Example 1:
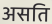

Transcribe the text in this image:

असति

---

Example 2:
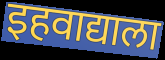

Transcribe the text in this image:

इहवाद्याला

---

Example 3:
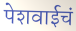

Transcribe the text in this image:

पेशवाईचं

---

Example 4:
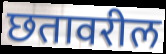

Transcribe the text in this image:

छतावरील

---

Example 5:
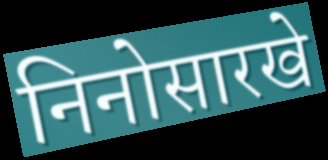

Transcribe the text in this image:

निनोसारखे